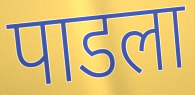
पाडला